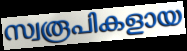
സ്വരൂപികളായ